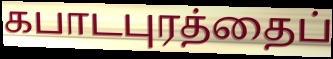
கபாடபுரத்தைப்